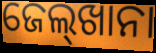
ଜେଲ୍‌ଖାନା